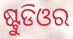
ଷ୍ଟୁଡିଓର